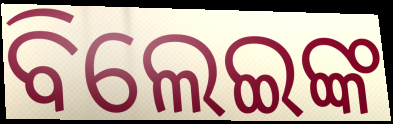
ବିଲେଇଙ୍କ